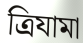
ত্রিযামা